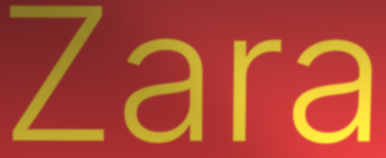
Zara